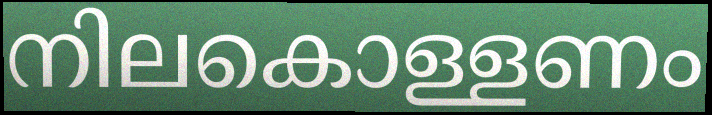
നിലകൊള്ളണം